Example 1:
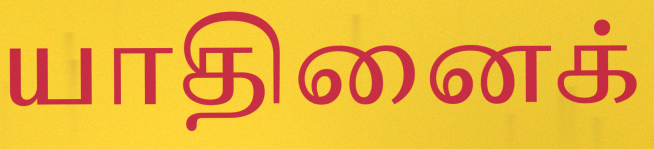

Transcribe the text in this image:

யாதினைக்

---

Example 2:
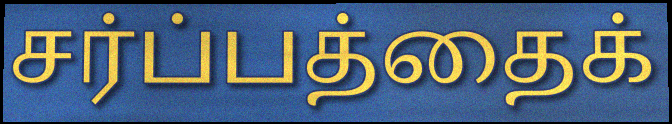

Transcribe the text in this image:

சர்ப்பத்தைக்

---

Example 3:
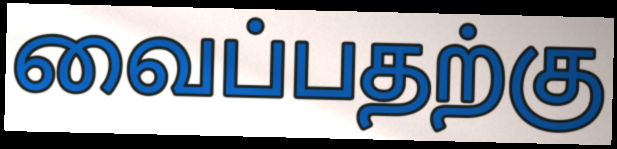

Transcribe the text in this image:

வைப்பதற்கு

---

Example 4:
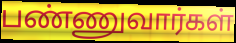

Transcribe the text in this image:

பண்ணுவார்கள்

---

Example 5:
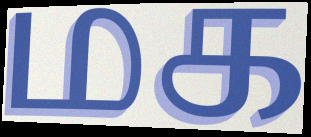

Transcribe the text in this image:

மக